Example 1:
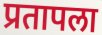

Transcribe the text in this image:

प्रतापला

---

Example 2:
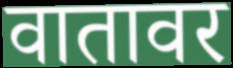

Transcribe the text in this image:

वातावर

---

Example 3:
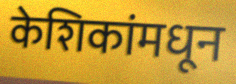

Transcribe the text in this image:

केशिकांमधून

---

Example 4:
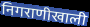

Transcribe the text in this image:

निगराणीखाली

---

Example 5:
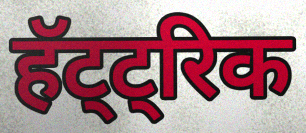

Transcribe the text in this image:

हॅट्ट्रिक